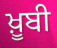
ਖ਼ੂਬੀ